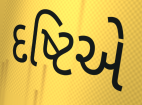
દષ્ટિએ